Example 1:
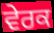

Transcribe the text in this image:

ਵੇਰਕ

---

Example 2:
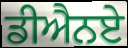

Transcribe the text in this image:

ਡੀਐਨਏ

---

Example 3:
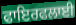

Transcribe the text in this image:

ਫਾਇਰਫਲਾਈ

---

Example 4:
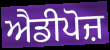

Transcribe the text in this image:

ਐਡੀਪੋਜ਼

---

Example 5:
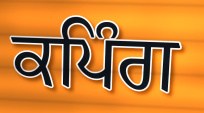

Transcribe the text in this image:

ਕਪਿੰਗ